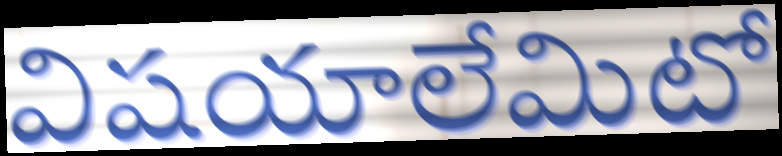
విషయాలేమిటో